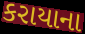
કરાયાના